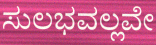
ಸುಲಭವಲ್ಲವೇ